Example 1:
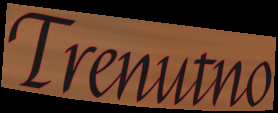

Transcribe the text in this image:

Trenutno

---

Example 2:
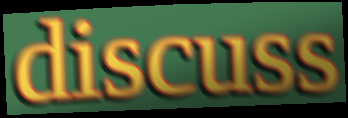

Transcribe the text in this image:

discuss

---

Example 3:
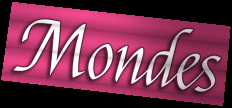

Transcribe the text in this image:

Mondes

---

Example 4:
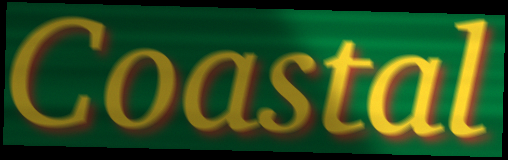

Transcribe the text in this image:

Coastal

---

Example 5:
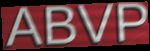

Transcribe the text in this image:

ABVP